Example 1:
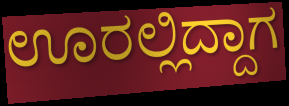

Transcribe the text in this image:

ಊರಲ್ಲಿದ್ದಾಗ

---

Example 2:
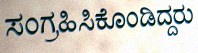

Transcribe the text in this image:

ಸಂಗ್ರಹಿಸಿಕೊಂಡಿದ್ದರು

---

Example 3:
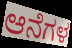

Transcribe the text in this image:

ಆನೆಗಳ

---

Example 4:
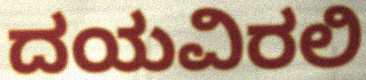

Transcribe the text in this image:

ದಯವಿರಲಿ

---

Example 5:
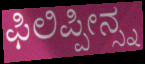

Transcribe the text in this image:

ಫಿಲಿಪ್ಪೀನ್ಸ್ನ